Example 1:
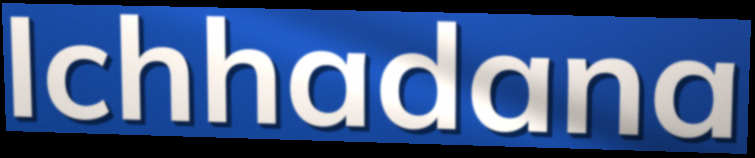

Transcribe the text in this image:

Ichhadana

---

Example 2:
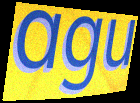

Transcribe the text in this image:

agu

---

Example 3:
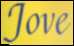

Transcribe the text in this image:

Jove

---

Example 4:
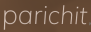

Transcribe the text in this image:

parichit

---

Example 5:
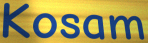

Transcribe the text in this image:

Kosam